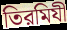
তিরমিযী